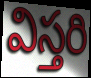
విస్తరి